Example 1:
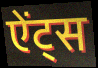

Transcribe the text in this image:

ऐंट्स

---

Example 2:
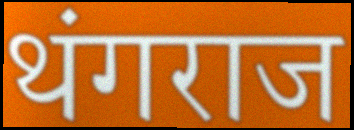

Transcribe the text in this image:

थंगराज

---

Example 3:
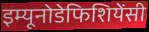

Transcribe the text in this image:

इम्यूनोडेफिशियेंसी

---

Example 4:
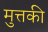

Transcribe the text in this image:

मुत्तकी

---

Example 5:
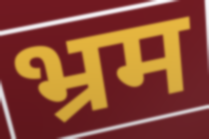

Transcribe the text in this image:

भ्रम